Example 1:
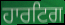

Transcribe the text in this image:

ਹਾਰਟਿਗ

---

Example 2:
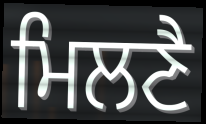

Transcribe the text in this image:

ਮਿਲਣੈ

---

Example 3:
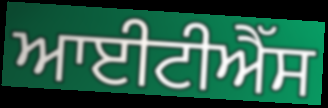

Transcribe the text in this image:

ਆਈਟੀਐੱਸ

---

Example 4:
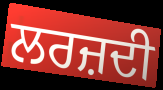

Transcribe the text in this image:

ਲਰਜ਼ਦੀ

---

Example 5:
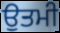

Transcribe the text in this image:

ਉਤਮੀ